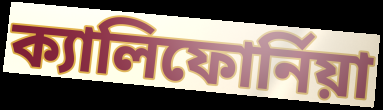
ক্যালিফোর্নিয়া